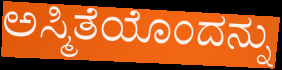
ಅಸ್ಮಿತೆಯೊಂದನ್ನು